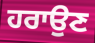
ਹਰਾਉਣ